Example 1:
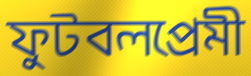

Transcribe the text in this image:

ফুটবলপ্রেমী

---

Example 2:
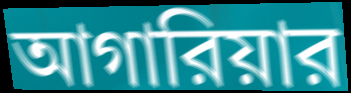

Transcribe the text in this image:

আগারিয়ার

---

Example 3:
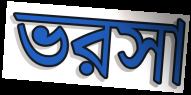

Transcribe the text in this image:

ভরসা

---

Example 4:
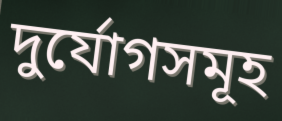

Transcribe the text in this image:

দুর্যোগসমূহ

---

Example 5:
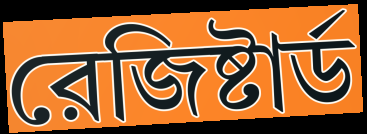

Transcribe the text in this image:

রেজিষ্টার্ড